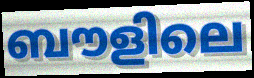
ബൗളിലെ